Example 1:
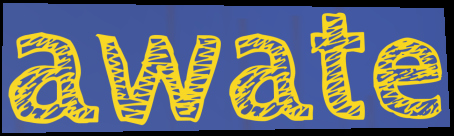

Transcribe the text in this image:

awate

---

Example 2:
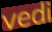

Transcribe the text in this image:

vedi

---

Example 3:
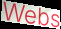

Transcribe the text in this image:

Webs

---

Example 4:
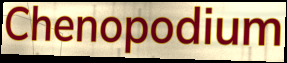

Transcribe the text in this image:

Chenopodium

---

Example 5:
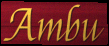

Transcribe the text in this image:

Ambu